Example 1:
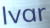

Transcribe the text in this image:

Ivar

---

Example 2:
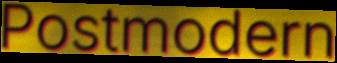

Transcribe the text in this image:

Postmodern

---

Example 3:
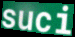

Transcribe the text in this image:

suci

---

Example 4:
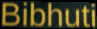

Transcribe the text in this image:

Bibhuti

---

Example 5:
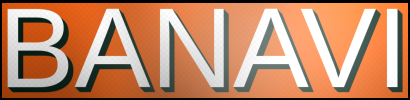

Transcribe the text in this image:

BANAVI